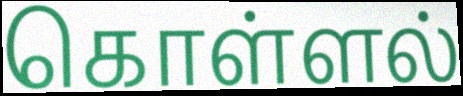
கொள்ளல்